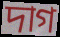
দাগ